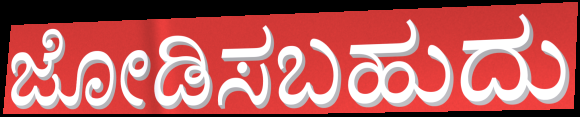
ಜೋಡಿಸಬಹುದು